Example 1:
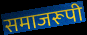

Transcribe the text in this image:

समाजरूपी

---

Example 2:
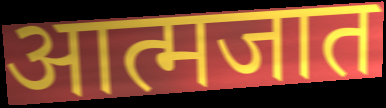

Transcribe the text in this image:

आत्मजात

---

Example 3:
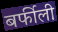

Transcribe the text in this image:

बर्फीली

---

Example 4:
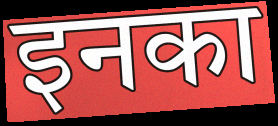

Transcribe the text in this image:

इनका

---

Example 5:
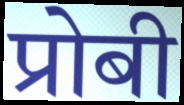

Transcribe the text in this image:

प्रोबी